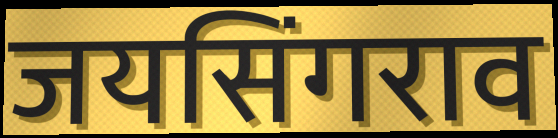
जयसिंगराव